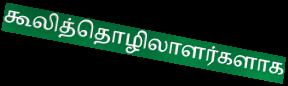
கூலித்தொழிலாளர்களாக